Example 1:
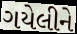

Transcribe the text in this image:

ગયેલીને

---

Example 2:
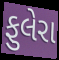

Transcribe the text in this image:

ફુલેરા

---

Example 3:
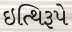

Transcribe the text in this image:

ઇત્થિરૂપે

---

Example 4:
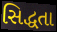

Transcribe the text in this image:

સિદ્ધતા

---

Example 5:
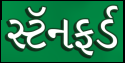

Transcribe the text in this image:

સ્ટૅનફર્ડ